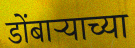
डोंबाऱ्याच्या